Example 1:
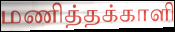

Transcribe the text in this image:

மணித்தக்காளி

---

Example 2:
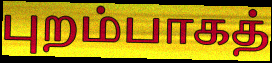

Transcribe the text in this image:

புறம்பாகத்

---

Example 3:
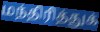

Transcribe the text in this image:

மந்திரித்துக்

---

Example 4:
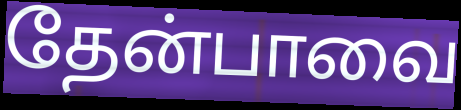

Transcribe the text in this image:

தேன்பாவை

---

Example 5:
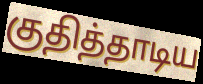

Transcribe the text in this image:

குதித்தாடிய